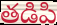
తడిపి